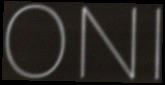
ONI